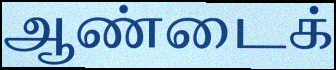
ஆண்டைக்